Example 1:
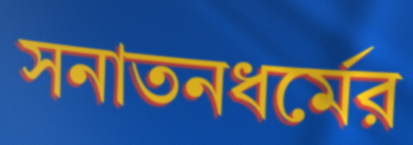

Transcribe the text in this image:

সনাতনধর্মের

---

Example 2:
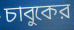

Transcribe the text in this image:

চাবুকের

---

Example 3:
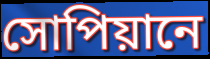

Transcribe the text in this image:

সোপিয়ানে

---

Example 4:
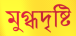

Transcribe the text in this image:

মুগ্ধদৃষ্টি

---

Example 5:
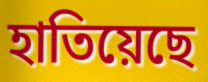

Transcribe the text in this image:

হাতিয়েছে